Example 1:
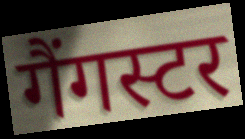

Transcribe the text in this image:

गैंगस्टर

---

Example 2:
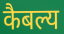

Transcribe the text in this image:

कैबल्य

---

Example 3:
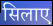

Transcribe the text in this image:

सिलाए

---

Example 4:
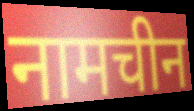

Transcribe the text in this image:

नामचीन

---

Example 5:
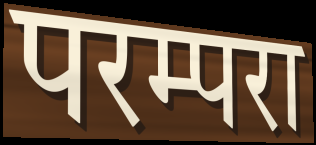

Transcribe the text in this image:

परम्परा